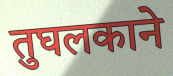
तुघलकाने